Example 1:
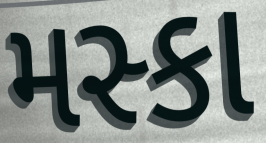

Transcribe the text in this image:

મસ્કા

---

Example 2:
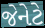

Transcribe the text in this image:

જેનેટે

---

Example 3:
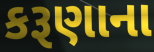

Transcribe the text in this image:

કરૂણાના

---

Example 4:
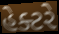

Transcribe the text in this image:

હેક્ટરે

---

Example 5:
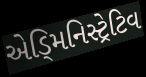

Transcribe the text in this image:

એડ્મિનિસ્ટ્રેટિવ